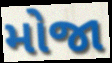
મોજા